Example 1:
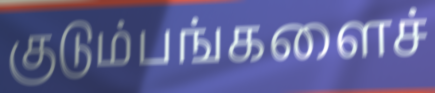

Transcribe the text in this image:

குடும்பங்களைச்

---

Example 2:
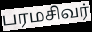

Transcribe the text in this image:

பரமசிவர்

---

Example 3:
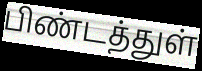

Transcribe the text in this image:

பிண்டத்துள்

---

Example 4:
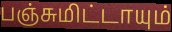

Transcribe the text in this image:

பஞ்சுமிட்டாயும்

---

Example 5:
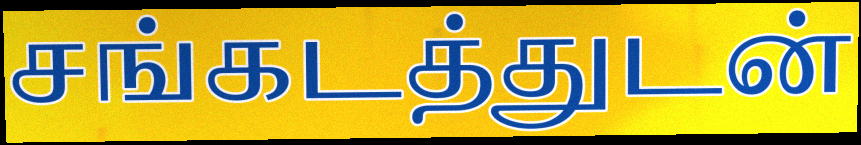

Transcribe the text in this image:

சங்கடத்துடன்